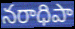
నరాధిపా